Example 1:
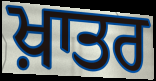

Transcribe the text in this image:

ਖ਼ਾਤਰ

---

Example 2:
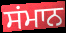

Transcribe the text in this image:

ਸਂਮਾਨ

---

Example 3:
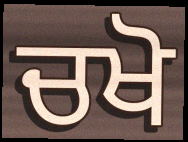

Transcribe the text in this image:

ਚਖੋ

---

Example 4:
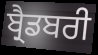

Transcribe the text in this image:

ਬ੍ਰੈਡਬਰੀ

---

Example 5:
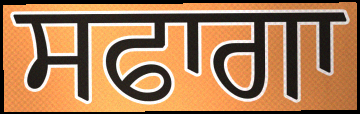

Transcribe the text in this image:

ਸਫਾਗਾ